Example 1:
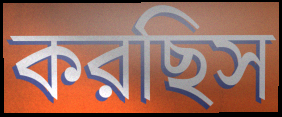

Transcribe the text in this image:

করছিস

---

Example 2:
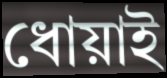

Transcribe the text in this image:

ধোয়াই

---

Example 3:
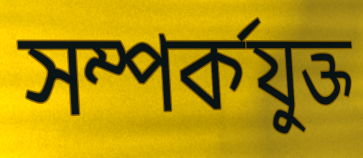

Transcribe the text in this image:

সম্পর্কযুক্ত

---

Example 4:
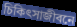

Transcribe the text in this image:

চিকিৎসাজীবনে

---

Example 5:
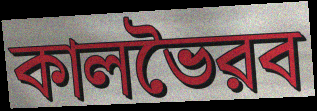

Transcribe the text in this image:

কালভৈরব